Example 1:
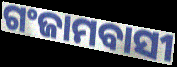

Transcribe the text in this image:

ଗଂଜାମବାସୀ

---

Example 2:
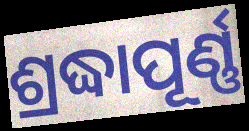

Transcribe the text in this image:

ଶ୍ରଦ୍ଧାପୂର୍ଣ୍ଣ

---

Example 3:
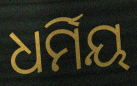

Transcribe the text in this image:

ଧର୍ମିୟ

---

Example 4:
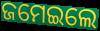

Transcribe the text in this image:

ଜମେଇଲେ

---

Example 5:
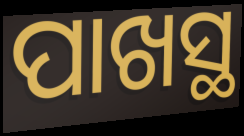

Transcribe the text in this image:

ପାଖସ୍ଥ